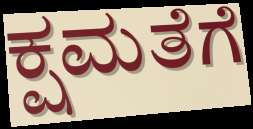
ಕ್ಷಮತೆಗೆ